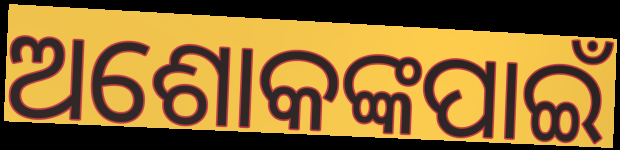
ଅଶୋକଙ୍କପାଇଁ